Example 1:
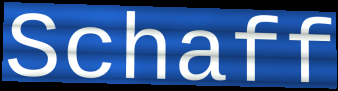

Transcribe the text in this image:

Schaff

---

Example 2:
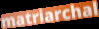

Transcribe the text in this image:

matriarchal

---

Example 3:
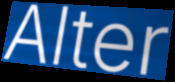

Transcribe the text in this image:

Alter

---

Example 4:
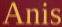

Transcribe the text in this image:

Anis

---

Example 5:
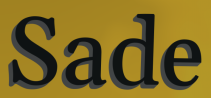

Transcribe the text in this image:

Sade